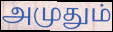
அமுதும்